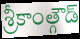
శ్రీకాంత్గౌడ్